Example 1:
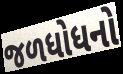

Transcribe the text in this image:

જળધોધનો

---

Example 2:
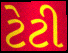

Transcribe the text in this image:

ટેટી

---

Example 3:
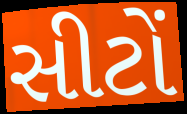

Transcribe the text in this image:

સીટોં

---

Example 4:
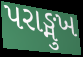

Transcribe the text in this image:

પરાઙ્મુખ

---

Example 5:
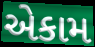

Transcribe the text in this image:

એકામ